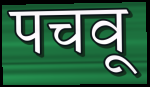
पचवू